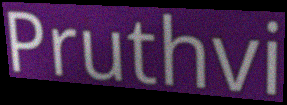
Pruthvi